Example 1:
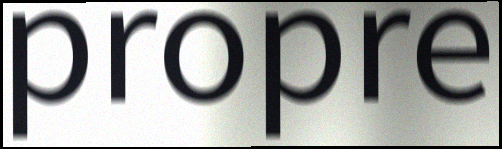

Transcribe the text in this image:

propre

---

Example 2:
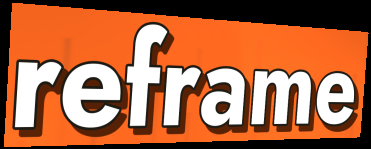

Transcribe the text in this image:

reframe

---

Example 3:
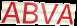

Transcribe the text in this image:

ABVA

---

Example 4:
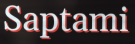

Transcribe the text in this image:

Saptami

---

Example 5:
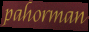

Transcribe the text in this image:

pahorman